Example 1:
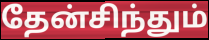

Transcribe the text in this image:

தேன்சிந்தும்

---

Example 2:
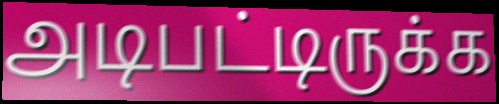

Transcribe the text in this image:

அடிபட்டிருக்க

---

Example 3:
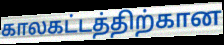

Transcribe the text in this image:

காலகட்டத்திற்கான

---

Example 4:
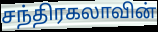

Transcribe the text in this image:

சந்திரகலாவின்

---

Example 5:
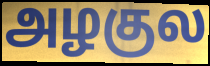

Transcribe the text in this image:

அழகுல